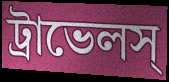
ট্রাভেলস্